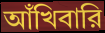
আঁখিবারি